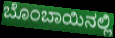
ಬೊಂಬಾಯಿನಲ್ಲಿ